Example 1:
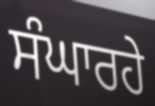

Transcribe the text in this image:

ਸੰਘਾਰਹੇ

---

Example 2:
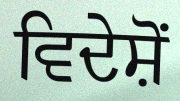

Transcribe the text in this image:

ਵਿਦੇਸ਼ੋਂ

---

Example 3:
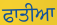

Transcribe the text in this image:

ਫਾਤੀਆ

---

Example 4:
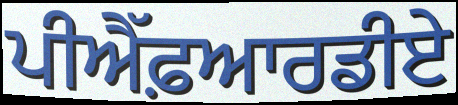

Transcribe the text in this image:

ਪੀਐੱਫ਼ਆਰਡੀਏ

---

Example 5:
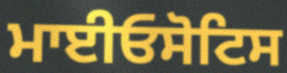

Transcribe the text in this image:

ਮਾਈਓਸੋਟਿਸ